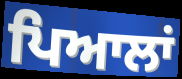
ਪਿਆਲਾਂ